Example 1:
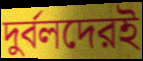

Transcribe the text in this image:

দুর্বলদেরই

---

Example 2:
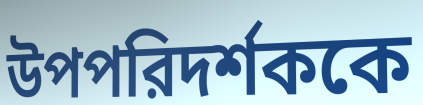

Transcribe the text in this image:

উপপরিদর্শককে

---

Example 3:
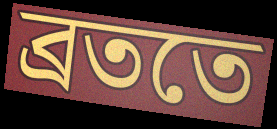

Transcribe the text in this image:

ব্রততে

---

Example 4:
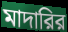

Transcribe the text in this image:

মাদারির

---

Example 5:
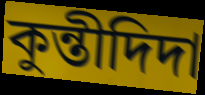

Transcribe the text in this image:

কুন্তীদিদা